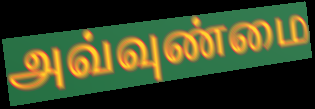
அவ்வுண்மை